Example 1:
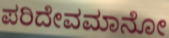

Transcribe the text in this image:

ಪರಿದೇವಮಾನೋ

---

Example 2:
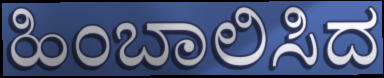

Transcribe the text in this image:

ಹಿಂಬಾಲಿಸಿದ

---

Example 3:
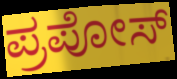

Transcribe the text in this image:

ಪ್ರಪೋಸ್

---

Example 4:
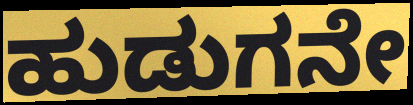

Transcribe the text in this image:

ಹುಡುಗನೇ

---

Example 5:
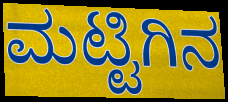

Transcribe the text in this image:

ಮಟ್ಟಿಗಿನ